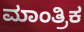
ಮಾಂತ್ರಿಕ